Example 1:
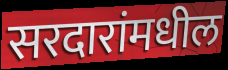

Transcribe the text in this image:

सरदारांमधील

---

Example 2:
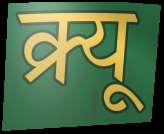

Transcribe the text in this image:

क्र्यू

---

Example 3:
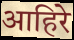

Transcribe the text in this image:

आहिरे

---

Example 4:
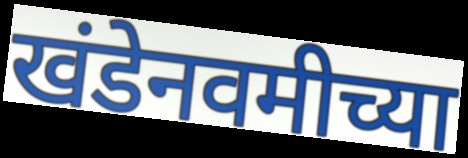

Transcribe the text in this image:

खंडेनवमीच्या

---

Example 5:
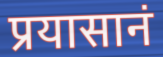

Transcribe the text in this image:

प्रयासानं